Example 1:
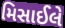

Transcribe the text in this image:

મિસાઈલે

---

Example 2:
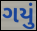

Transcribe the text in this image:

ગયું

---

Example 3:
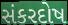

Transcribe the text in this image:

સંકરદોષ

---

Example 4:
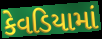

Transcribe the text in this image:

કેવડિયામાં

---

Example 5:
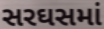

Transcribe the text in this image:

સરઘસમાં